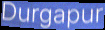
Durgapur